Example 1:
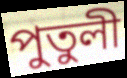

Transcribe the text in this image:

পুতুলী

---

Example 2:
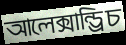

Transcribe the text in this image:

আলেক্সান্ড্রিচ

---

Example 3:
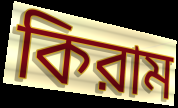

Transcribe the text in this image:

কিরাম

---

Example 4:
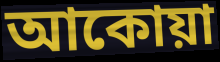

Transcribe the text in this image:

আকোয়া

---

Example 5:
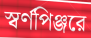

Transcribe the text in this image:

স্বর্ণপিঞ্জরে